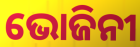
ଭୋଜିନୀ